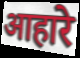
आहारे